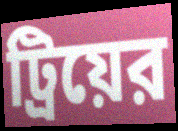
ট্রিয়ের